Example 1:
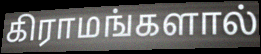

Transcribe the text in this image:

கிராமங்களால்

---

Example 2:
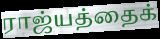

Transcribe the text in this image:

ராஜ்யத்தைக்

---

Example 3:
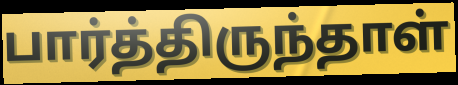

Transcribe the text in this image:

பார்த்திருந்தாள்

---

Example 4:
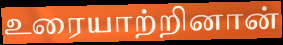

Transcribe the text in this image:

உரையாற்றினான்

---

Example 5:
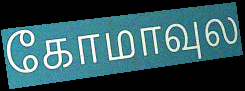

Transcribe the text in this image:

கோமாவுல